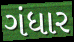
ગંધાર